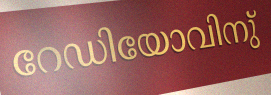
റേഡിയോവിനു്